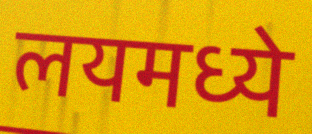
लयमध्ये